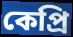
কেপ্রি